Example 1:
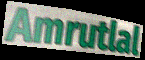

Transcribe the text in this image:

Amrutlal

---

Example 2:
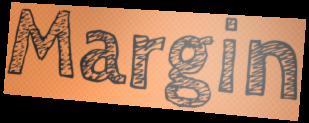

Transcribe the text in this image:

Margin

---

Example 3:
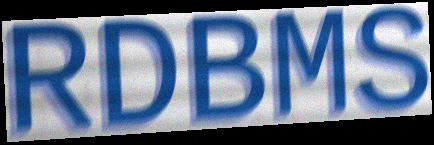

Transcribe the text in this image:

RDBMS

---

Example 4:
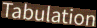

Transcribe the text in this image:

Tabulation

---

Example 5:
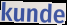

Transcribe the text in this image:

kunde